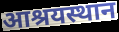
आश्रयस्थान